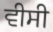
ਵੀਸੀ